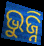
ଭୁଜ୍ନି